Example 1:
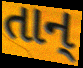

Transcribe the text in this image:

તાન્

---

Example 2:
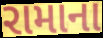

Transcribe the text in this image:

રામાના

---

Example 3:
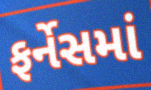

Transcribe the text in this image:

ફર્નેસમાં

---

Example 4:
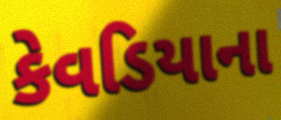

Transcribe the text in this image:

કેવડિયાના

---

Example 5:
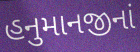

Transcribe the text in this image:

હનુમાનજીનાં